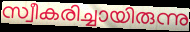
സ്വീകരിച്ചായിരുന്നു